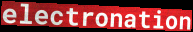
electronation